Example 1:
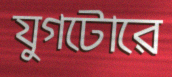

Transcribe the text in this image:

যুগটোৱে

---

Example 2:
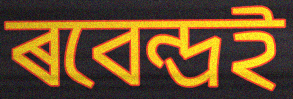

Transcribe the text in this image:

ৰবেন্দ্ৰই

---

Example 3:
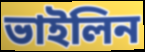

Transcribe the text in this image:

ভাইলিন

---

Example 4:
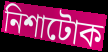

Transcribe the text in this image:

নিশাটোক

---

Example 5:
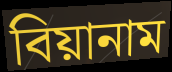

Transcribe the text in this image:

বিয়ানাম